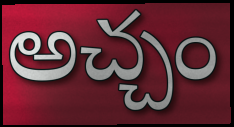
అచ్చం